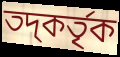
তদ্‌কর্তৃক